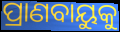
ପ୍ରାଣବାୟୁକୁ